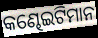
କଣ୍ଢେଇଟିମାନ